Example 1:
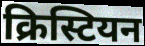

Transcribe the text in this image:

क्रिस्टियन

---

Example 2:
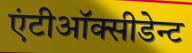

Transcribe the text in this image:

एंटीऑक्सीडेन्ट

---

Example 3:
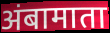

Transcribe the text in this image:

अंबामाता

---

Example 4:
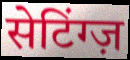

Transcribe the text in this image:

सेटिंग्ज़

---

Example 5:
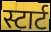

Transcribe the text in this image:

स्टार्ट